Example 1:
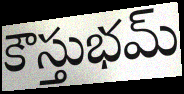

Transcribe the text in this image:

కౌస్తుభమ్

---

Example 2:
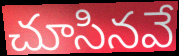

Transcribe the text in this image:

చూసినవే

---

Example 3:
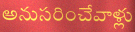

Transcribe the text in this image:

అనుసరించేవాళ్లు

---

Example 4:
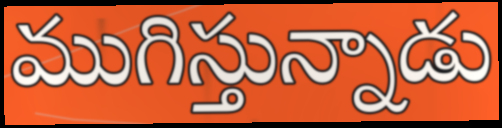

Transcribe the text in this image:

ముగిస్తున్నాడు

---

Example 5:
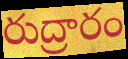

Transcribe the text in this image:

రుద్రారం